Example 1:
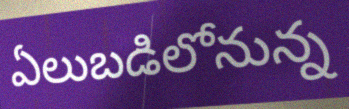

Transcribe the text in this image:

ఏలుబడిలోనున్న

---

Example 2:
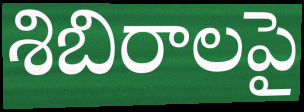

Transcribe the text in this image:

శిబిరాలపై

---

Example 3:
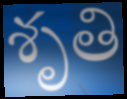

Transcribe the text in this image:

శృతి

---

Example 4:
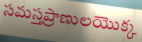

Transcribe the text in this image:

సమస్తప్రాణులయొక్క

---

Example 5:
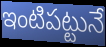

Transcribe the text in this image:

ఇంటిపట్టునే